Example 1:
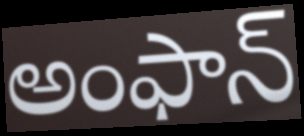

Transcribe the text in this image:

అంఫాన్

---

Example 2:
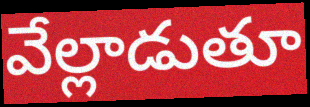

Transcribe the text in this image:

వేల్లాడుతూ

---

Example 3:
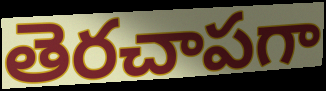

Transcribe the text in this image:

తెరచాపగా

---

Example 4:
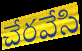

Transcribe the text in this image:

చేరవేసి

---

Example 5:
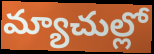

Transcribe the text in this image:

మ్యాచుల్లో